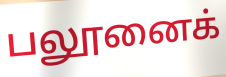
பலூனைக்